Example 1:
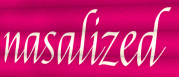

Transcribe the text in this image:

nasalized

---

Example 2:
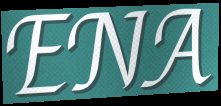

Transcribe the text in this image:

ENA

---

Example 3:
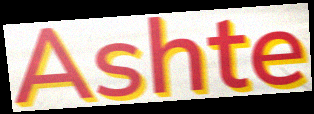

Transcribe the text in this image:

Ashte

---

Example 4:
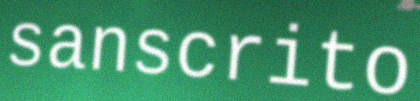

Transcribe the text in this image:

sanscrito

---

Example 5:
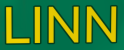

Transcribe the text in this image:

LINN